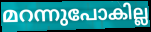
മറന്നുപോകില്ല